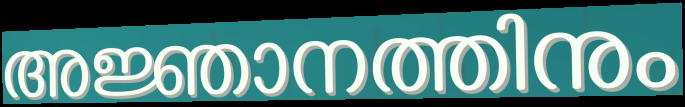
അജ്ഞാനത്തിനും